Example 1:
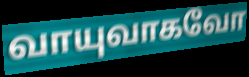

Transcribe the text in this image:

வாயுவாகவோ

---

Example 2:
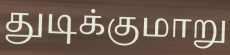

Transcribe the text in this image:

துடிக்குமாறு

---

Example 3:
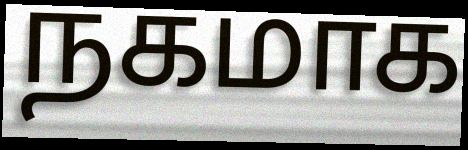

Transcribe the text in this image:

நகமாக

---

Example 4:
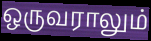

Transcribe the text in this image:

ஒருவராலும்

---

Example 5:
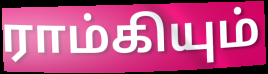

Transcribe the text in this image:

ராம்கியும்